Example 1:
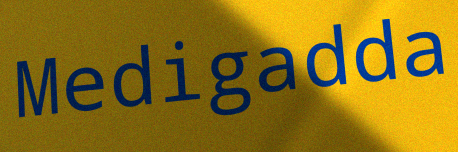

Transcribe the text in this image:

Medigadda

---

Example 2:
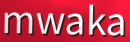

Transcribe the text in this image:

mwaka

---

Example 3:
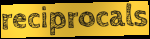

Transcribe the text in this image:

reciprocals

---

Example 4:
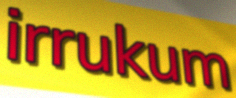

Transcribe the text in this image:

irrukum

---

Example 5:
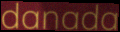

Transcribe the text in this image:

danada